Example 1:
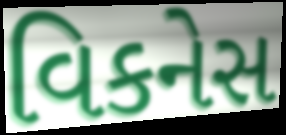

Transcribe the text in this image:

વિકનેસ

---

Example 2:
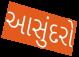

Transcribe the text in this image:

આસુંદરો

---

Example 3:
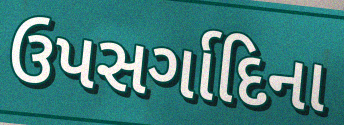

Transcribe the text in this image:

ઉપસર્ગાદિના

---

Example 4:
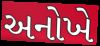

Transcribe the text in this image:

અનોખે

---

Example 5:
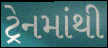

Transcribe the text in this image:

ટ્રેનમાંથી